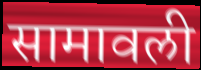
सामावली